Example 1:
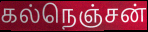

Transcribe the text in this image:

கல்நெஞ்சன்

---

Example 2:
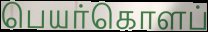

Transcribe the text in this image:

பெயர்கொளப்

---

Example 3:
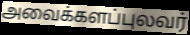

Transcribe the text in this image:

அவைக்களப்புலவர்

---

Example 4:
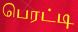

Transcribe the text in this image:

பெரட்டி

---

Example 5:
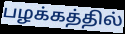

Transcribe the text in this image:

பழக்கத்தில்